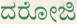
ದರೋಜಿ